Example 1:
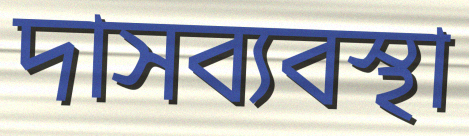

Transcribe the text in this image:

দাসব্যবস্থা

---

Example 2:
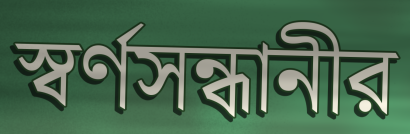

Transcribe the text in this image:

স্বর্ণসন্ধানীর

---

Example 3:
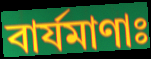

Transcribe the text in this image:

বার্যমাণাঃ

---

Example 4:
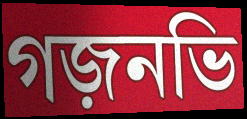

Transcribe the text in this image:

গজ়নভি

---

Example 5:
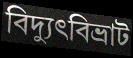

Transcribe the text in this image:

বিদ্যুৎবিভ্রাট